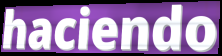
haciendo